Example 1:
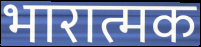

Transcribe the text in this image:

भारात्मक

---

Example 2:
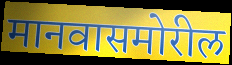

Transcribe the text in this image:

मानवासमोरील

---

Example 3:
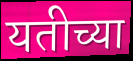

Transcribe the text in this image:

यतीच्या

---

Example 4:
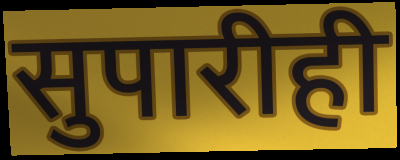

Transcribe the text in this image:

सुपारीही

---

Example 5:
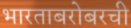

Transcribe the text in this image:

भारताबरोबरची